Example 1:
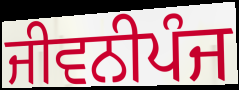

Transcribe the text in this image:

ਜੀਵਨੀਪੰਜ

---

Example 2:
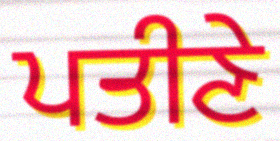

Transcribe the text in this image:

ਪਤੀਣੇ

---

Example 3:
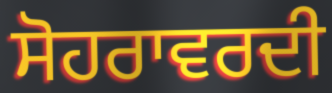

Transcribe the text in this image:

ਸੋਹਰਾਵਰਦੀ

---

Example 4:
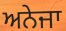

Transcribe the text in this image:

ਅਨੇਜਾ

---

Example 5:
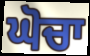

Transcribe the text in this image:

ਘੋਚਾ